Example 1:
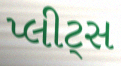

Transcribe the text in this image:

પ્લીટ્સ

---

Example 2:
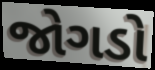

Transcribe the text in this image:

જોગડો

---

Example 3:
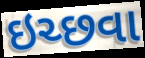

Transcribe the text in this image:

ઇચ્છવા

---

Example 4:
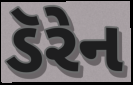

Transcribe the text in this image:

ડૅરેન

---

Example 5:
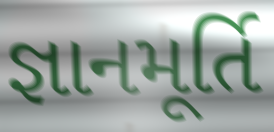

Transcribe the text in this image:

જ્ઞાનમૂર્તિ